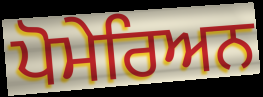
ਪੋਮੇਰਿਅਨ